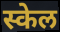
स्केल